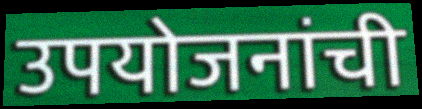
उपयोजनांची